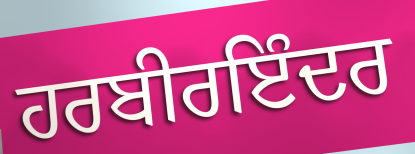
ਹਰਬੀਰਇੰਦਰ